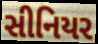
સીનિયર